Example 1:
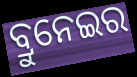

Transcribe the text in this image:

ବ୍ରୁନେଇର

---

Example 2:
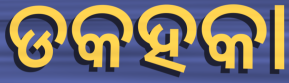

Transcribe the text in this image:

ଡକହକା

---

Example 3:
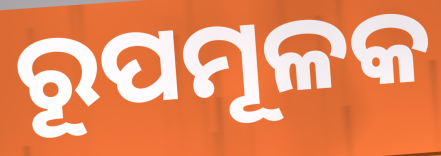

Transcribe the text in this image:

ରୂପମୂଳକ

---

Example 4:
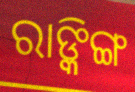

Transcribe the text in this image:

ରାଙ୍କିଙ୍ଗ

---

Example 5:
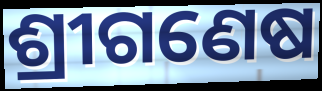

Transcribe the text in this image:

ଶ୍ରୀଗଣେଷ